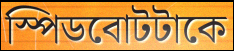
স্পিডবোটটাকে